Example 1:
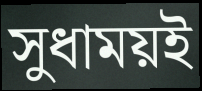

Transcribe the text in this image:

সুধাময়ই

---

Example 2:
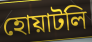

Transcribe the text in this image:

হোয়াটলি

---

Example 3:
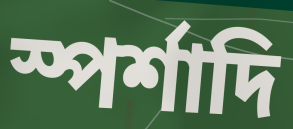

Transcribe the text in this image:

স্পর্শাদি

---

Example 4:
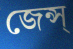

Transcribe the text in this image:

জেন্স্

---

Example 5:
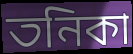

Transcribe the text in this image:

তনিকা